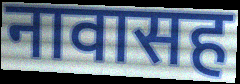
नावासह